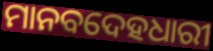
ମାନବଦେହଧାରୀ